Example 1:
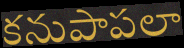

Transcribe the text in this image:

కనుపాపలా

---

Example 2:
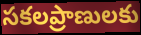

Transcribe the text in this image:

సకలప్రాణులకు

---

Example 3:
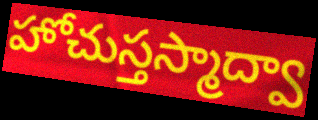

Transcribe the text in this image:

హోచుస్తస్మాద్వా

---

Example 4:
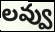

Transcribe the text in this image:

లవ్వు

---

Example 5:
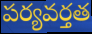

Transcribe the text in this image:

పర్యవర్తత